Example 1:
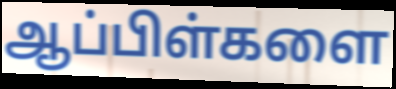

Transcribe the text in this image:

ஆப்பிள்களை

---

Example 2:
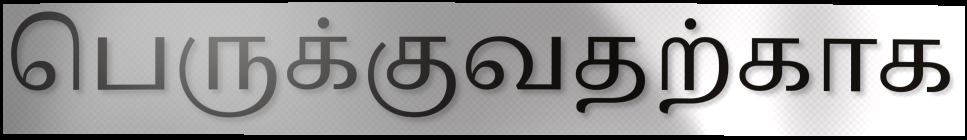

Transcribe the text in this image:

பெருக்குவதற்காக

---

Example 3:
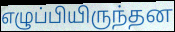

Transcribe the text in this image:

எழுப்பியிருந்தன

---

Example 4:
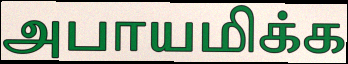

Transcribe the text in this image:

அபாயமிக்க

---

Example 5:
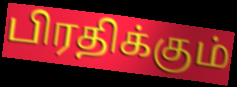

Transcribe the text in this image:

பிரதிக்கும்